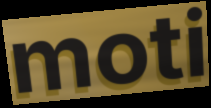
moti